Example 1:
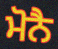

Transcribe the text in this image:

ਮੋਨੈ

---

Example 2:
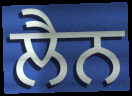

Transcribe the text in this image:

ਲੈਨ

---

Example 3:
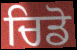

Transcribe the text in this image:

ਚਿਡੋ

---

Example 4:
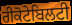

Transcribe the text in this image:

ਰੀਕੋਟੇਬਿਲਟੀ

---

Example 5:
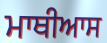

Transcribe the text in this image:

ਮਾਥੀਆਸ